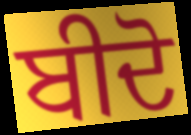
ਬੀਦੋ